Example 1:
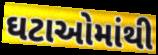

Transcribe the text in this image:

ઘટાઓમાંથી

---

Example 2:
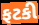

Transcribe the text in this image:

ફટકી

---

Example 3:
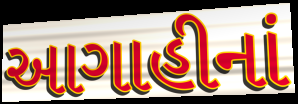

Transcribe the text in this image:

આગાહીનાં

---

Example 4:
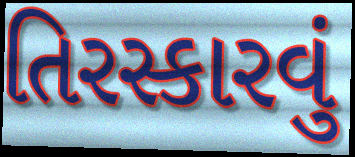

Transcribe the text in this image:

તિરસ્કારવું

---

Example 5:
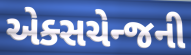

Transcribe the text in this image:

એક્સચેન્જની